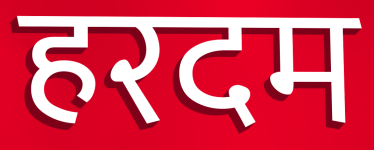
हरदम